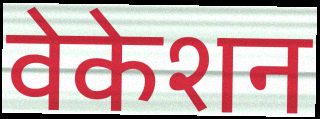
वेकेशन